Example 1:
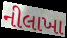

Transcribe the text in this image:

નીલાખા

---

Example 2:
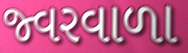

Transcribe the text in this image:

જ્વરવાળા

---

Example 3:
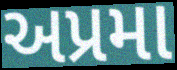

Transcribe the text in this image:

અપ્રમા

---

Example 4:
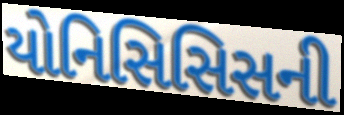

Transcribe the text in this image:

યોનિસિસિસની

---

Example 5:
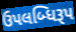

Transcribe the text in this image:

ઉપલબ્ધિરૂપ